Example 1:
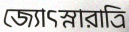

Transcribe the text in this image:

জ্যোৎস্নারাত্রি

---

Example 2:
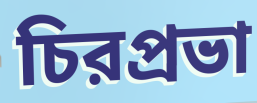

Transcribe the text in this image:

চিরপ্রভা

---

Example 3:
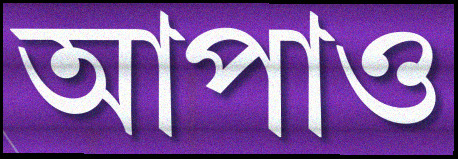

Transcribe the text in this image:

আপাও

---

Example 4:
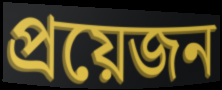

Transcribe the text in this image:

প্রয়েজন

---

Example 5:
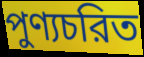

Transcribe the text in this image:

পুণ্যচরিত